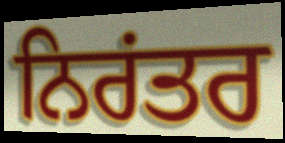
ਨਿਰਂਤਰ